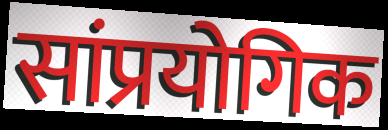
सांप्रयोगिक